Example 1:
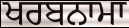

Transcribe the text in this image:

ਖਰਬਨਾਮਾ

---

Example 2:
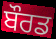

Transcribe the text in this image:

ਬੌਰਡ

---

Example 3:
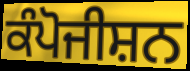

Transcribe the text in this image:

ਕੰਪੋਜੀਸ਼ਨ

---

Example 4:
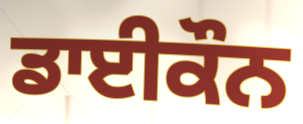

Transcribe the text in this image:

ਡਾਈਕੌਨ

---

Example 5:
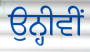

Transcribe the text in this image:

ਉਨ੍ਹੀਵੀਂ